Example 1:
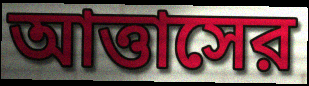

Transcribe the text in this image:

আত্তাসের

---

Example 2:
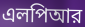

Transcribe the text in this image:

এলপিআর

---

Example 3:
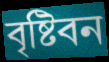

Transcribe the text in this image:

বৃষ্টিবন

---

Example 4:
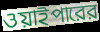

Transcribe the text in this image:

ওয়াইপারের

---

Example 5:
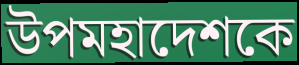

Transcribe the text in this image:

উপমহাদেশকে